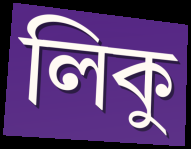
লিকু